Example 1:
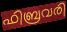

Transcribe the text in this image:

ഫിബ്രവരി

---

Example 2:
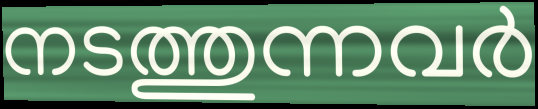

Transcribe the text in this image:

നടത്തുന്നവർ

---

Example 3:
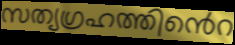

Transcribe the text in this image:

സത്യഗ്രഹത്തിൻെറ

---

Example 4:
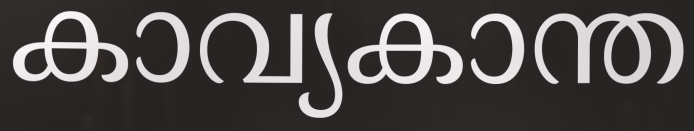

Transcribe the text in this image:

കാവ്യകാന്ത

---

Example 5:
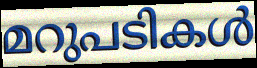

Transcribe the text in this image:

മറുപടികൾ